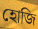
হোজি